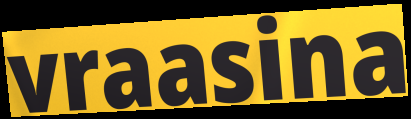
vraasina